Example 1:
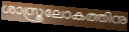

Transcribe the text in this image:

ശാസ്ത്രലോകത്തിനു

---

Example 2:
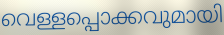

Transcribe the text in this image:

വെള്ളപ്പൊക്കവുമായി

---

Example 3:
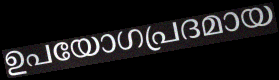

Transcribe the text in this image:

ഉപയോഗപ്രദമായ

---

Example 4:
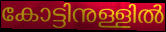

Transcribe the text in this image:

കോട്ടിനുള്ളിൽ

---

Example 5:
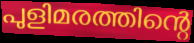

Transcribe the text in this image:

പുളിമരത്തിന്റെ